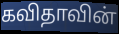
கவிதாவின்